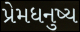
પ્રેમધનુષ્ય